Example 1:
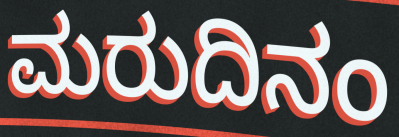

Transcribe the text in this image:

ಮರುದಿನಂ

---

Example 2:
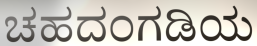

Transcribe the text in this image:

ಚಹದಂಗಡಿಯ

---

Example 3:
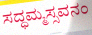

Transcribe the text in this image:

ಸದ್ಧಮ್ಮಸ್ಸವನಂ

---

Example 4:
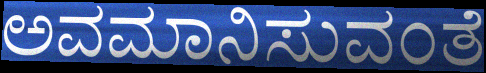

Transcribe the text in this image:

ಅವಮಾನಿಸುವಂತೆ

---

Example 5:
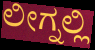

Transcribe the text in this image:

ಲೀಗ್ನಲ್ಲಿ